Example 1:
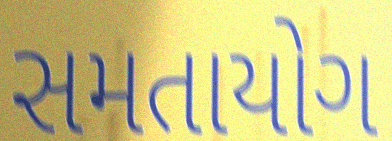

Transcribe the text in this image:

સમતાયોગ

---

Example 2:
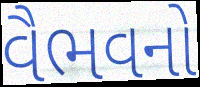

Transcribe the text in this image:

વૈભવનો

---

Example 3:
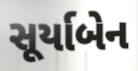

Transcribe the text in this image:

સૂર્યાબેન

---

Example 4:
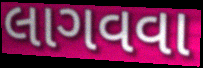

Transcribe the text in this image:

લાગવવા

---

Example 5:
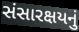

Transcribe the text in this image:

સંસારક્ષયનું